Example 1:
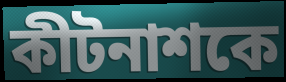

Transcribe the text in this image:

কীটনাশকে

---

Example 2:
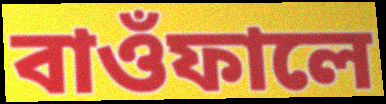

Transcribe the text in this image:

বাওঁফালে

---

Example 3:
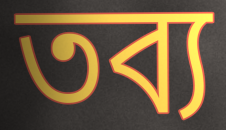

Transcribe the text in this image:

তব্য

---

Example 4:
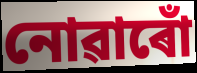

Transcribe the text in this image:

নোৱাৰোঁ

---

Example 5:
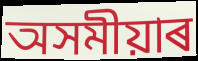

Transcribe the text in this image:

অসমীয়াৰ